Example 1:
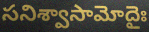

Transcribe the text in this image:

సనిశ్వాసామోదైః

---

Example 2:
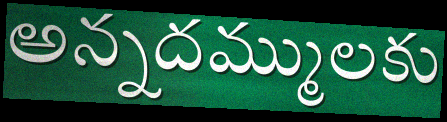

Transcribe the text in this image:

అన్నదమ్ములకు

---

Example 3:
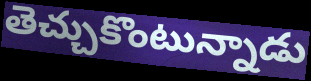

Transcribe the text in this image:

తెచ్చుకొంటున్నాడు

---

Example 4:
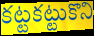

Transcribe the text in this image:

కట్టకట్టుకొని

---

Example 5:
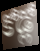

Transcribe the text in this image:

కోడ్లో